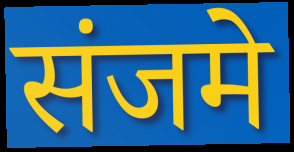
संजमे